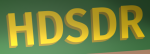
HDSDR